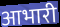
आभारी